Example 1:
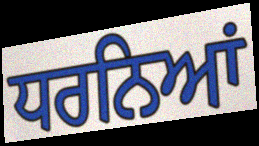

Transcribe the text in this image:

ਧਰਨਿਆਂ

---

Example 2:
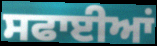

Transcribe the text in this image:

ਸਫਾਈਆਂ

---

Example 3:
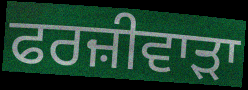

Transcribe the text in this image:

ਫਰਜ਼ੀਵਾੜਾ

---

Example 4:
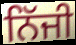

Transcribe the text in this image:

ਨਿੱਜੀ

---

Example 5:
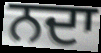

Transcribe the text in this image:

ਨਦਾ